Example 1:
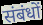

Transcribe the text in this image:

संबंधों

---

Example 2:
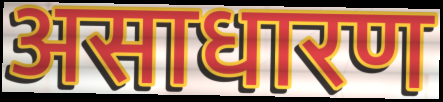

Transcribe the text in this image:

असाधारण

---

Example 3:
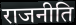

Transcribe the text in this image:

राजनीति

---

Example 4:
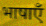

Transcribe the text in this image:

भाषाएँ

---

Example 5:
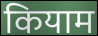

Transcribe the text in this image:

कियाम